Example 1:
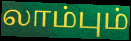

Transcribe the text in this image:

லாம்பும்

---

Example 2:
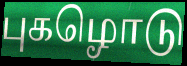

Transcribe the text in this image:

புகழொடு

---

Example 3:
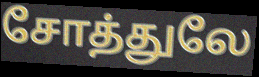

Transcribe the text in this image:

சோத்துலே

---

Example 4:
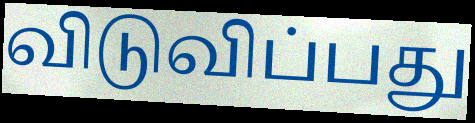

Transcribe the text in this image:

விடுவிப்பது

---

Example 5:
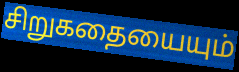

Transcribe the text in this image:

சிறுகதையையும்